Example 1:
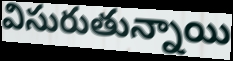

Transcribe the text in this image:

విసురుతున్నాయి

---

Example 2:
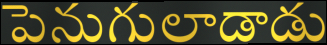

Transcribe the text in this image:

పెనుగులాడాడు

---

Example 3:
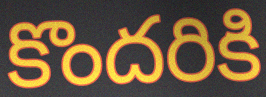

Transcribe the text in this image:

కొందరికి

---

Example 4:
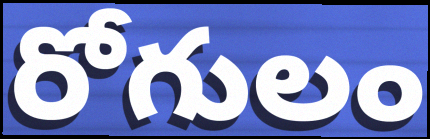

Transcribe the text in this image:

రోగులం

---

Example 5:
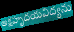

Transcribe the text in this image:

అక్షహృదయవిద్యను